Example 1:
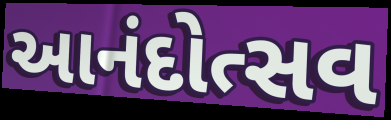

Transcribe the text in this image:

આનંદોત્સવ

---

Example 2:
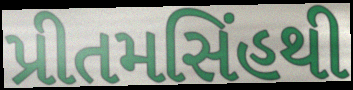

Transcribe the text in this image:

પ્રીતમસિંહથી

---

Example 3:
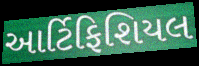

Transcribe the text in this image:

આર્ટિફિશિયલ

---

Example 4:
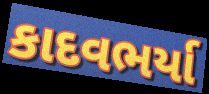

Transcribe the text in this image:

કાદવભર્યા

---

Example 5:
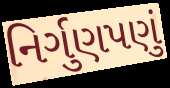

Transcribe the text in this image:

નિર્ગુણપણું